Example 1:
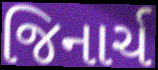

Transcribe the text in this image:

જિનાર્ચ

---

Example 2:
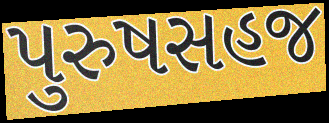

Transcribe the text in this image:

પુરુષસહજ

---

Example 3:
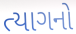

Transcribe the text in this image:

ત્યાગનો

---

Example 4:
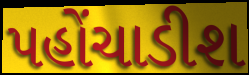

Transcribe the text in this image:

પહોંચાડીશ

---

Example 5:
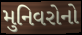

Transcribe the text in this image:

મુનિવરોનો